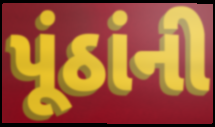
પૂંઠાંની